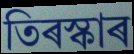
তিৰস্কাৰ